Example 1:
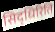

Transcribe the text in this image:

सिद्धिरिति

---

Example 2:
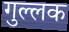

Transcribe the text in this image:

गुल्लक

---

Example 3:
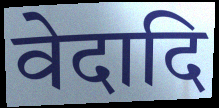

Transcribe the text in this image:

वेदादि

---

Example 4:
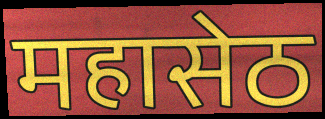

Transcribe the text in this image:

महासेठ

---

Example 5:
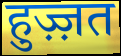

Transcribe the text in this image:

हुज़्ज़त